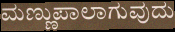
ಮಣ್ಣುಪಾಲಾಗುವುದು